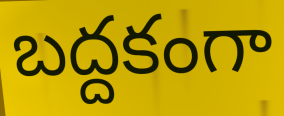
బద్దకంగా